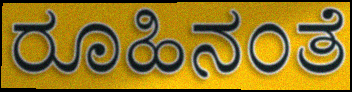
ರೂಹಿನಂತೆ